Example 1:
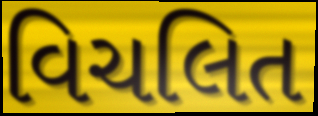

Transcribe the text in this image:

વિચલિત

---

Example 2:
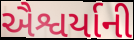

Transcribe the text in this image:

ઐશ્વર્યાની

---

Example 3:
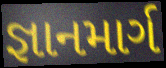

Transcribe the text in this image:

જ્ઞાનમાર્ગ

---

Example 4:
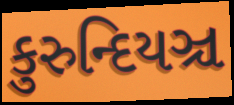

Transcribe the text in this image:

કુરુન્દિયઞ્ચ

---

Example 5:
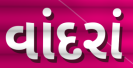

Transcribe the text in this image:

વાંદરાં